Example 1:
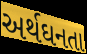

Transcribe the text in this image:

અર્થઘનતા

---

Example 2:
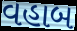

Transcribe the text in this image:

વહાબ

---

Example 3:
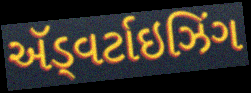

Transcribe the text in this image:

ઍડ્વર્ટાઇઝિંગ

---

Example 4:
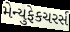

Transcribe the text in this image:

મેન્યુફેકચરર્સ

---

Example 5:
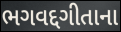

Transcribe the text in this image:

ભગવદ્દગીતાના